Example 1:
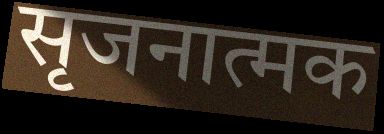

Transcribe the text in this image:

सृजनात्मक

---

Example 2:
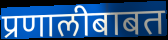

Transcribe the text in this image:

प्रणालीबाबत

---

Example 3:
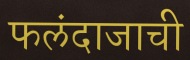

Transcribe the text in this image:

फलंदाजाची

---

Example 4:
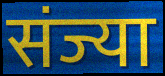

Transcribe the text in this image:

संज्या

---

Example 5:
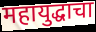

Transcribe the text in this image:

महायुद्धाचा